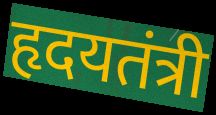
हृदयतंत्री